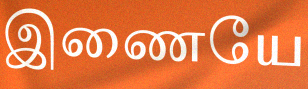
இணையே